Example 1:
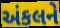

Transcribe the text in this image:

અંકલને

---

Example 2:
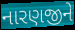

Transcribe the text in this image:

નારણજીને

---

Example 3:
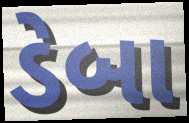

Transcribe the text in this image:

ડેબા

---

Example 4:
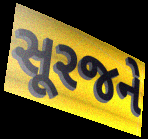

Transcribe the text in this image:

સૂરજને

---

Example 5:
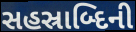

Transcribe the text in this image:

સહસ્રાબ્દિની